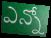
ఎన్నో